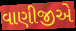
વાણીજીએ